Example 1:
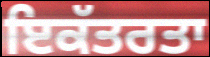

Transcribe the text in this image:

ਇਕੱਤਰਤਾ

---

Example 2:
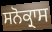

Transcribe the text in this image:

ਸਨੋਕ੍ਰਾਸ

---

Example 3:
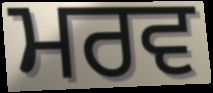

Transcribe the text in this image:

ਮਰਵ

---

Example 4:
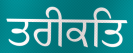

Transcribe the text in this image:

ਤਰੀਕਤਿ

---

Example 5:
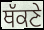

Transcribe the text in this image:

ਥੱਕਣੇ